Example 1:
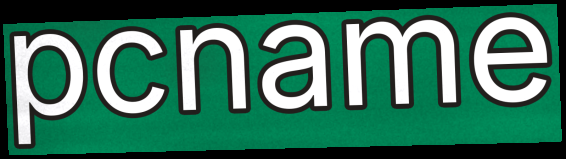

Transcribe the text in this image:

pcname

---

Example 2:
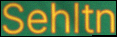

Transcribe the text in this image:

Sehltn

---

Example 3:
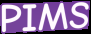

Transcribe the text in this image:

PIMS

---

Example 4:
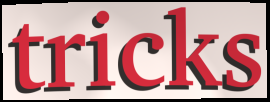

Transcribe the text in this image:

tricks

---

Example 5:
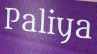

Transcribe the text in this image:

Paliya